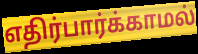
எதிர்பார்க்காமல்